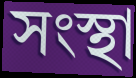
সংস্থা